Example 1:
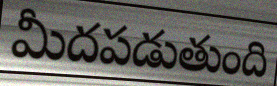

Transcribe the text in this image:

మీదపడుతుంది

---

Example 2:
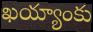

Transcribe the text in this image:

ఖయ్యాంకు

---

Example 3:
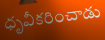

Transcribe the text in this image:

ధృవీకరించాడు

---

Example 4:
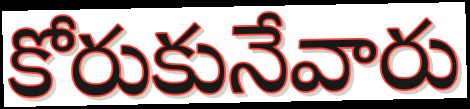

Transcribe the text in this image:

కోరుకునేవారు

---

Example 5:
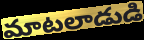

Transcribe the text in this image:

మాటలాడుడి